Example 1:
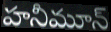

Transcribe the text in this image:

హనీమూన్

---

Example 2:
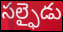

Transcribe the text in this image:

సల్ఫైడు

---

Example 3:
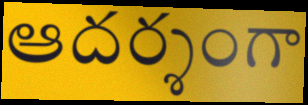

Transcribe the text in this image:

ఆదర్శంగా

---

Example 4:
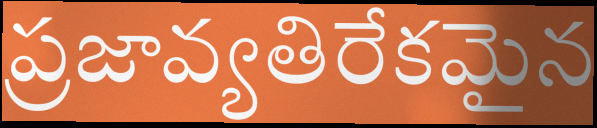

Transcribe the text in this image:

ప్రజావ్యతిరేకమైన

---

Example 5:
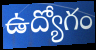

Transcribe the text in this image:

ఉద్యోగం